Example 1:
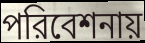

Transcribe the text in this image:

পরিবেশনায়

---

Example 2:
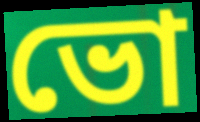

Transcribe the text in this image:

ভো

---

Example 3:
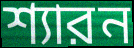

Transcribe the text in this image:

শ্যারন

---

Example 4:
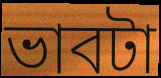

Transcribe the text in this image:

ভাবটা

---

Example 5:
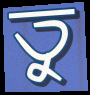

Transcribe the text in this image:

তু